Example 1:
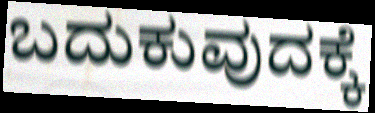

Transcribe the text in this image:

ಬದುಕುವುದಕ್ಕೆ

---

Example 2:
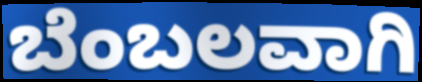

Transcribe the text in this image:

ಬೆಂಬಲವಾಗಿ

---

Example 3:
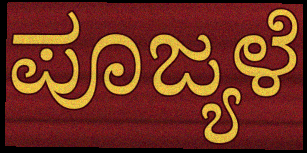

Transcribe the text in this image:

ಪೂಜ್ಯಳೆ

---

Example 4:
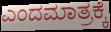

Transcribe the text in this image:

ಎಂದಮಾತ್ರಕ್ಕೆ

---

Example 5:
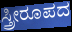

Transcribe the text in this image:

ಸ್ತ್ರೀರೂಪದ